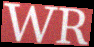
WR